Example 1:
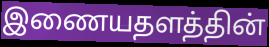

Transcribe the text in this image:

இணையதளத்தின்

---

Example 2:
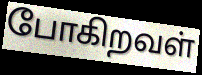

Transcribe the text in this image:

போகிறவள்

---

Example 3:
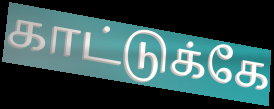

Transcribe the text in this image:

காட்டுக்கே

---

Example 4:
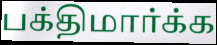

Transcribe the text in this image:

பக்திமார்க்க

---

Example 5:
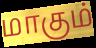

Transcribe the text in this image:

மாகும்